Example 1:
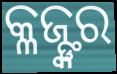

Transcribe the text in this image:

କ୍ଳଜ୍ଙ୍କର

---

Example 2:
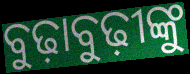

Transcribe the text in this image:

ବୁଢ଼ାବୁଢ଼ୀଙ୍କୁ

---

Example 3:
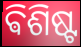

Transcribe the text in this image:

ଵିଶିଷ୍ଟ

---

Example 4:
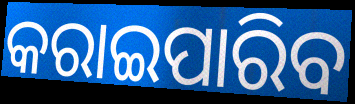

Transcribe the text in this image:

କରାଇପାରିବ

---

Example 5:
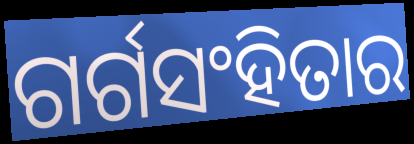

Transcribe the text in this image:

ଗର୍ଗସଂହିତାର